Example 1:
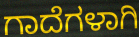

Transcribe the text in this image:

ಗಾದೆಗಳಾಗಿ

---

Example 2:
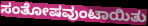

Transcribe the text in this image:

ಸಂತೋಷವುಂಟಾಯಿತು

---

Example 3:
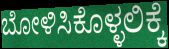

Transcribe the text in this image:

ಬೋಳಿಸಿಕೊಳ್ಳಲಿಕ್ಕೆ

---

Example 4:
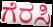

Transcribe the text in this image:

ಗೆರಸಿ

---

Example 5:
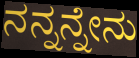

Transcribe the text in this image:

ನನ್ನನ್ನೇನು